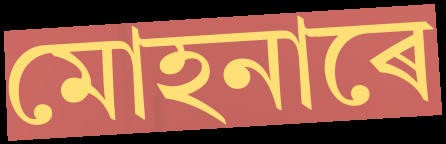
মোহনাৰে